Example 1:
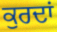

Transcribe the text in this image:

ਕੁਰਦਾਂ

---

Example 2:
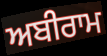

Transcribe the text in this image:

ਅਬੀਰਾਮ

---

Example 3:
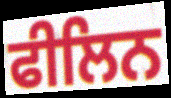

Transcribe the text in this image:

ਫੀਲਿਨ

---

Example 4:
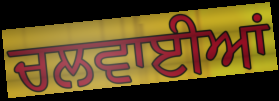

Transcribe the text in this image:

ਚਲਵਾਈਆਂ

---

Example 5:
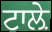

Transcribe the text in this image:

ਟਾਲ਼ੇ